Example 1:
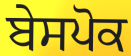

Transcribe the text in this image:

ਬੇਸਪੋਕ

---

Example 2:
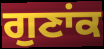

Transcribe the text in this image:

ਗੁਣਾਂਕ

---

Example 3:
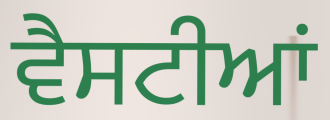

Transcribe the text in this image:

ਵੈਸਟੀਆਂ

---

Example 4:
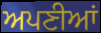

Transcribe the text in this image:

ਅਪਣੀਆਂ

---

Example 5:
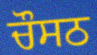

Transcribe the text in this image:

ਚੌਸਠ